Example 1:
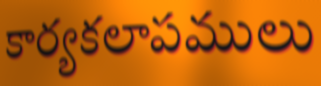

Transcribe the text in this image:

కార్యకలాపములు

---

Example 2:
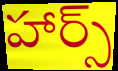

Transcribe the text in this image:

హార్స్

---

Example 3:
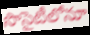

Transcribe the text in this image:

సొసైటీలోనూ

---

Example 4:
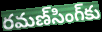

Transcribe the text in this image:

రమణ్‌సింగ్‌కు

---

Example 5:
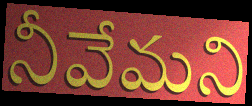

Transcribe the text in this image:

నీవేమని